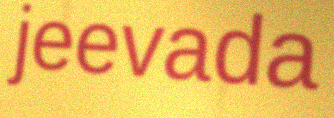
jeevada